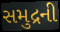
સમુદ્રની